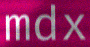
mdx